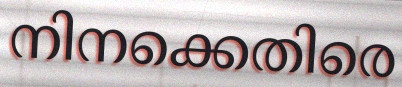
നിനക്കെതിരെ